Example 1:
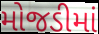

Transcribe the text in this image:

મોજડીમાં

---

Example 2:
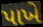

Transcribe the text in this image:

પાખે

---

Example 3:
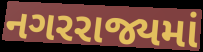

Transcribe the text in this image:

નગરરાજ્યમાં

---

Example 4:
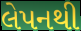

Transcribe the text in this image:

લેપનથી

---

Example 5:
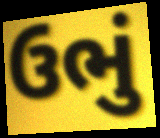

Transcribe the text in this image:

ઉભું